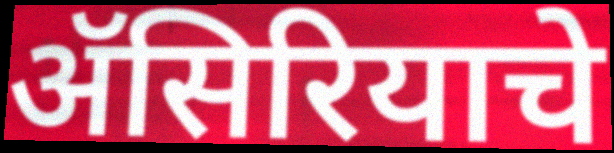
ॲसिरियाचे